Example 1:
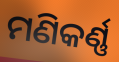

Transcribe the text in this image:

ମଣିକର୍ଣ୍ଣ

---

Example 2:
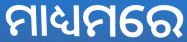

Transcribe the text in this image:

ମାଧ୍ୟମରେ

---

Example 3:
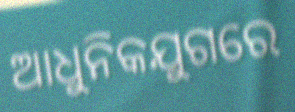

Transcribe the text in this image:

ଆଧୁନିକଯୁଗରେ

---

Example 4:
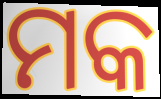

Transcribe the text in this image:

ମକ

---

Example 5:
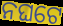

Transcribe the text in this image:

ନଘଟେ